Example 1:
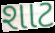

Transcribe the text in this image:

શાટ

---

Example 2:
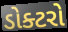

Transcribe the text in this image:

ડોક્ટરો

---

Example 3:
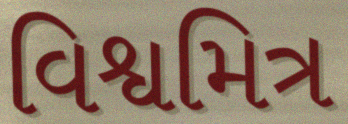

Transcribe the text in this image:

વિશ્વમિત્ર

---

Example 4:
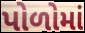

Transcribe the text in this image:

પોળોમાં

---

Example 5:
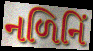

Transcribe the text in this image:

નળિનિં